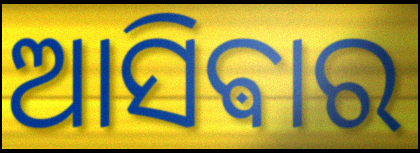
ଆସିଵାର